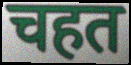
चहत